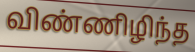
விண்ணிழிந்த